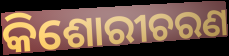
କିଶୋରୀଚରଣ